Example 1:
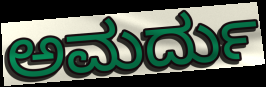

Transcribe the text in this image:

ಅಮರ್ದು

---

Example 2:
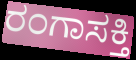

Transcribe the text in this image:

ರಂಗಾಸಕ್ತಿ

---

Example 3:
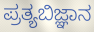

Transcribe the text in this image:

ಪ್ರತ್ಯಬಿಜ್ಞಾನ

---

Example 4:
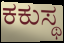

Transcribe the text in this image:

ಕಕುಸ್ಥ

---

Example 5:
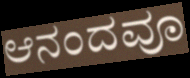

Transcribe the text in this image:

ಆನಂದವೂ